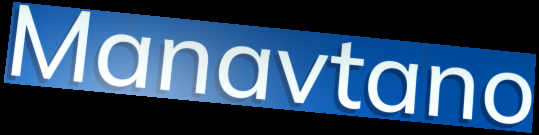
Manavtano